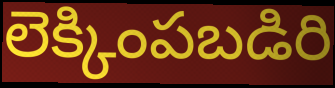
లెక్కింపబడిరి